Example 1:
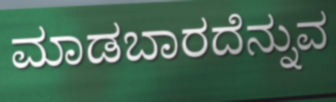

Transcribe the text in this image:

ಮಾಡಬಾರದೆನ್ನುವ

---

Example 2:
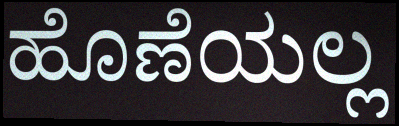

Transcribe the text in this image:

ಹೊಣೆಯಲ್ಲ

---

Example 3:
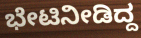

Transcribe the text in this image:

ಭೇಟಿನೀಡಿದ್ದ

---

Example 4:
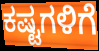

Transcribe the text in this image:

ಕಷ್ಟಗಳಿಗೆ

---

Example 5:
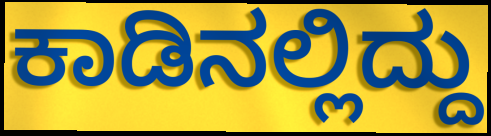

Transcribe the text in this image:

ಕಾಡಿನಲ್ಲಿದ್ದು